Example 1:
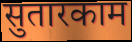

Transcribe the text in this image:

सुतारकाम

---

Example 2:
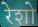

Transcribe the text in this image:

रेशो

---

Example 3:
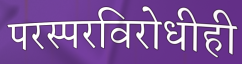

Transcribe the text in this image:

परस्परविरोधीही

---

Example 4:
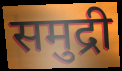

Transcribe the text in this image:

समुद्री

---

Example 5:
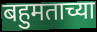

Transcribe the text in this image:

बहुमताच्या